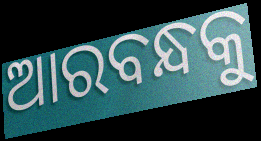
ଆରବନ୍ଧକୁ